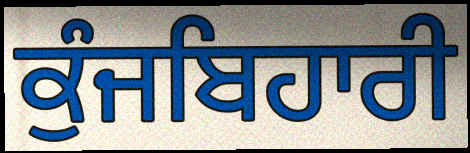
ਕੁੰਜਬਿਹਾਰੀ